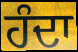
ਹੰਦਾ